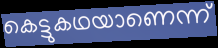
കെട്ടുകഥയാണെന്ന്